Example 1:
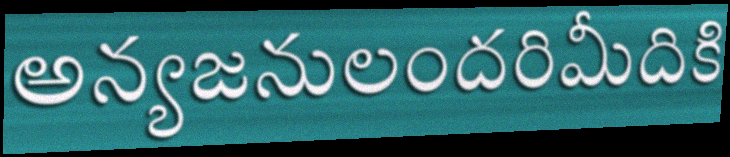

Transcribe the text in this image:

అన్యజనులందరిమీదికి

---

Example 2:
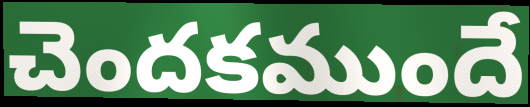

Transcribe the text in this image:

చెందకముందే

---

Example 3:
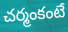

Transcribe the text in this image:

చర్మంకంటే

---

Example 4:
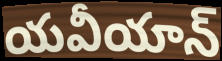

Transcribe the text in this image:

యవీయాన్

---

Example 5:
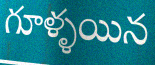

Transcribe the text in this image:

గూళ్ళయిన